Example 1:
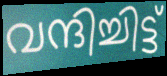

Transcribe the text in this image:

വന്ദിച്ചിട്ട്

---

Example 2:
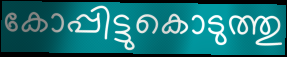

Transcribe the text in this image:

കോപ്പിട്ടുകൊടുത്തു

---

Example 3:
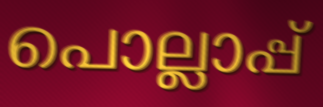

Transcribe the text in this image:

പൊല്ലാപ്പ്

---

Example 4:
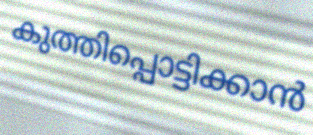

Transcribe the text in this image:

കുത്തിപ്പൊട്ടിക്കാൻ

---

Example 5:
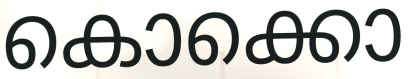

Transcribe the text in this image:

കൊക്കൊ